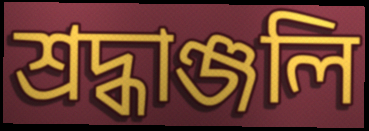
শ্ৰদ্ধাঞ্জলি